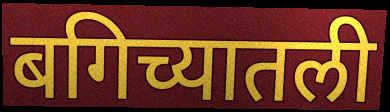
बगिच्यातली